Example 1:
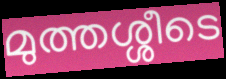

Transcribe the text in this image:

മുത്തശ്ശീടെ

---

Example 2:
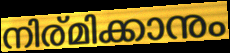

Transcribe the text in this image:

നിര്മിക്കാനും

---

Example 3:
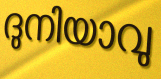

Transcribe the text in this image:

ദുനിയാവു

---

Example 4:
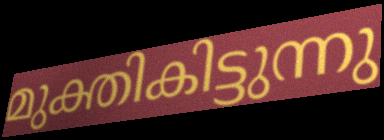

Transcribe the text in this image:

മുക്തികിട്ടുന്നു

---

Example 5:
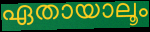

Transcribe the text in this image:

ഏതായാലൂം